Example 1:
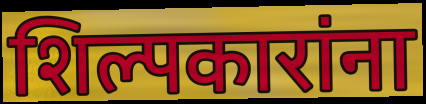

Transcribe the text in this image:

शिल्पकारांना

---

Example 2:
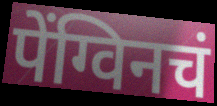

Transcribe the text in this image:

पेंग्विनचं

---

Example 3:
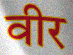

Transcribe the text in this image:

वीर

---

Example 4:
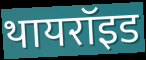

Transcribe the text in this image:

थायरॉइड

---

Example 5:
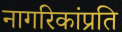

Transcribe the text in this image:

नागरिकांप्रति